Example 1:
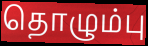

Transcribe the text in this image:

தொழும்பு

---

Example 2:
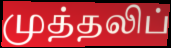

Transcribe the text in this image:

முத்தலிப்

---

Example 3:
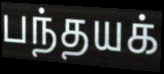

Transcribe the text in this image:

பந்தயக்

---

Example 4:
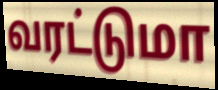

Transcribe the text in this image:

வரட்டுமா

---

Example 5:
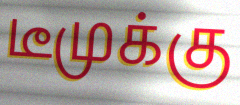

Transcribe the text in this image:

டீமுக்கு